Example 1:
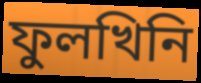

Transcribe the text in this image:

ফুলখিনি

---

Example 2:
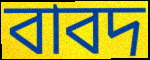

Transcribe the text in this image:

বাবদ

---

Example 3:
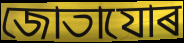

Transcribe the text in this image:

জোতাযোৰ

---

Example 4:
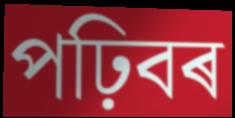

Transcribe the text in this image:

পঢ়িবৰ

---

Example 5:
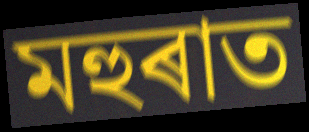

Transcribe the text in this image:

মহুৰাত